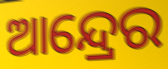
ଆନ୍ଦ୍ରେର